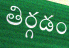
తిర్గడం